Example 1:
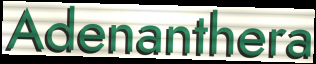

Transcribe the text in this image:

Adenanthera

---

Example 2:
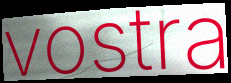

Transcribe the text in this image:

vostra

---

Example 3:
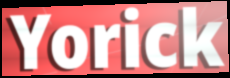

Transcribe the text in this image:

Yorick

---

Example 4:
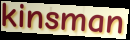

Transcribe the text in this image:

kinsman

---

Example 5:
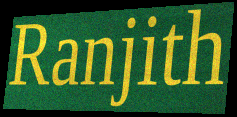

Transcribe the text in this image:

Ranjith